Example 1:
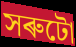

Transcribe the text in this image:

সৰুটো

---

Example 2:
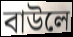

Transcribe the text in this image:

বাউলে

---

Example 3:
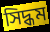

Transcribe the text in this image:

সিদ্ধম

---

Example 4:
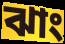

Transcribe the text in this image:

ঝাং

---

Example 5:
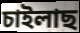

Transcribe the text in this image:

চাইলাছ